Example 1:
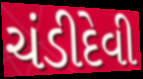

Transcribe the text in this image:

ચંડીદેવી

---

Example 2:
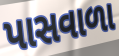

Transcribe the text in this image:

પાસવાળા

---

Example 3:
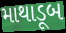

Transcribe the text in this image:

માથાડૂબ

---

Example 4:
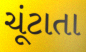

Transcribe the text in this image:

ચૂંટાતા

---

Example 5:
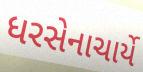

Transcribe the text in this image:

ધરસેનાચાર્યે